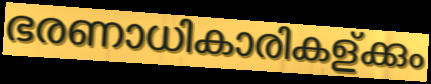
ഭരണാധികാരികള്ക്കും